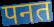
पनत